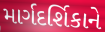
માર્ગદર્શિકાને